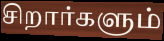
சிறார்களும்